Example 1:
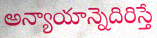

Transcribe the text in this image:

అన్యాయాన్నెదిరిస్తే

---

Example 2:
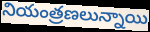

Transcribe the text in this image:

నియంత్రణలున్నాయి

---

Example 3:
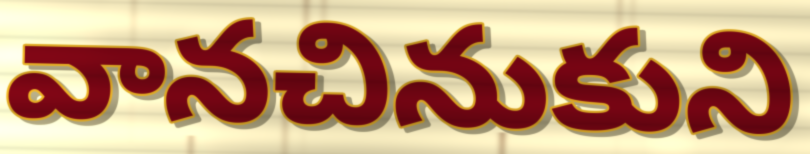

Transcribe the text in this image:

వానచినుకుని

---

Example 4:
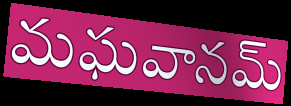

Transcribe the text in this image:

మఘవానమ్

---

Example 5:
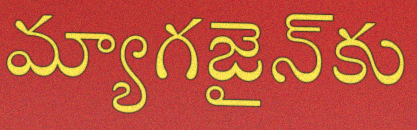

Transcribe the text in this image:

మ్యాగజైన్‌కు